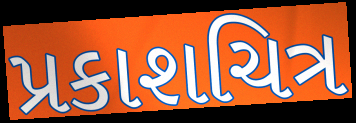
પ્રકાશચિત્ર